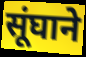
सूंघाने